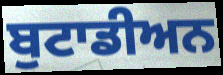
ਬੁਟਾਡੀਅਨ